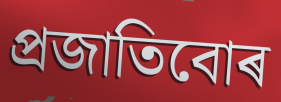
প্ৰজাতিবোৰ